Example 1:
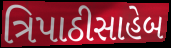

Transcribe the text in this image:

ત્રિપાઠીસાહેબ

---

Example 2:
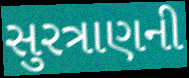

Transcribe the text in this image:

સુરત્રાણની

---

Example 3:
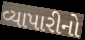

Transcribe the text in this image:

વ્યાપારીનો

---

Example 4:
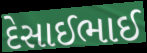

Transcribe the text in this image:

દેસાઈભાઈ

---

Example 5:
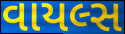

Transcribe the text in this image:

વાયલ્સ